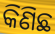
କିଣିଛ